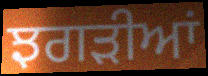
ਝਗੜੀਆਂ